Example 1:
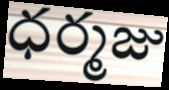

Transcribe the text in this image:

ధర్మజు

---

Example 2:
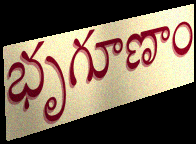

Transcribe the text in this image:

భృగూణాం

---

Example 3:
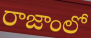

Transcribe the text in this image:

రాజాంలో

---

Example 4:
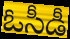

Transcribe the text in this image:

ఓసీడీ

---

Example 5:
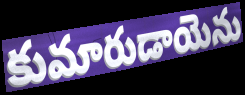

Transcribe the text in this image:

కుమారుడాయెను